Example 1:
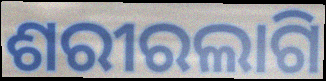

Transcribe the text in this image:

ଶରୀରଲାଗି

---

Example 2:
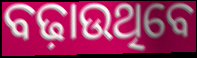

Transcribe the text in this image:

ବଢ଼ାଉଥିବେ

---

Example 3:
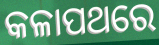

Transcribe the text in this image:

କଳାପଥରେ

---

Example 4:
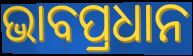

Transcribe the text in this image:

ଭାବପ୍ରଧାନ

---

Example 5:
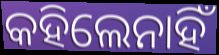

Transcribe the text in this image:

କହିଲେନାହିଁ